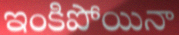
ఇంకిపోయినా